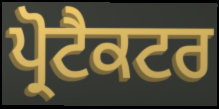
ਪ੍ਰੋਟੈਕਟਰ